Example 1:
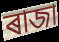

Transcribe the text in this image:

ৰাজা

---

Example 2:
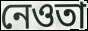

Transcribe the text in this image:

নেওতা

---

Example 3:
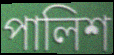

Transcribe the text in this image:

পালিশ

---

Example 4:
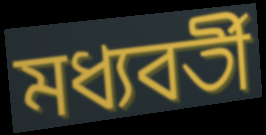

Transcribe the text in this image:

মধ্যবৰ্তী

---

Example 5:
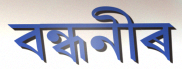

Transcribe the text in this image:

বন্ধনীৰ